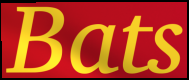
Bats